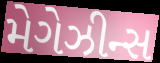
મેગેઝીન્સ